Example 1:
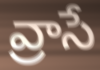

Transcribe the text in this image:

వ్రాసే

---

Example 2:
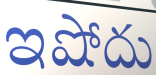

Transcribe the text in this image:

ఇషోదు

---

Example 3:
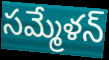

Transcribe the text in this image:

సమ్మేళన్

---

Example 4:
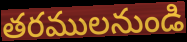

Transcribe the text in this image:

తరములనుండి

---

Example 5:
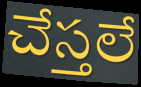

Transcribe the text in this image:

చేస్తలే